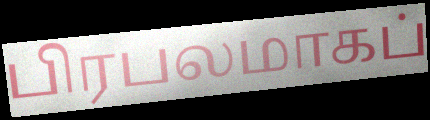
பிரபலமாகப்